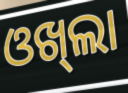
ଓଖ୍‌ଲା